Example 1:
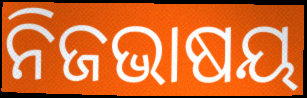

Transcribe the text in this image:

ନିଜଭାଷୟ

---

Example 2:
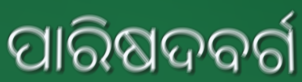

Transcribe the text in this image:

ପାରିଷଦବର୍ଗ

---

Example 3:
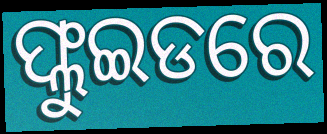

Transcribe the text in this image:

ଫ୍ଲୁଇଡରେ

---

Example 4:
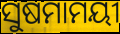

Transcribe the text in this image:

ସୁଷମାମୟୀ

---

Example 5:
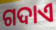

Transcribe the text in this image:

ଗଦାଏ